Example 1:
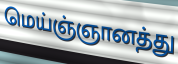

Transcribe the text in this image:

மெய்ஞ்ஞானத்து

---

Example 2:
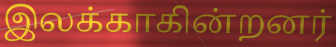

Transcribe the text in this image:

இலக்காகின்றனர்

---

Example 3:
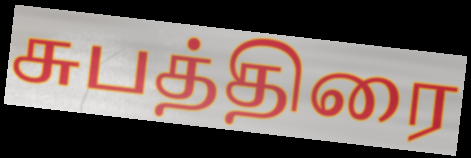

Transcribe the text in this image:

சுபத்திரை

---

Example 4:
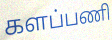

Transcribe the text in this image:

களப்பணி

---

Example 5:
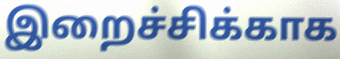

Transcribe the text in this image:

இறைச்சிக்காக